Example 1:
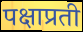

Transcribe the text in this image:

पक्षाप्रती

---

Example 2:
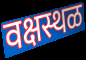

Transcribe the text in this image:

वक्षस्थळ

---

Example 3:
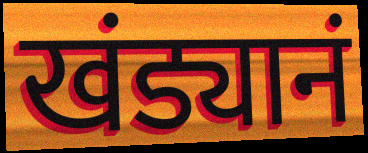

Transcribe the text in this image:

खंड्यानं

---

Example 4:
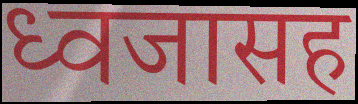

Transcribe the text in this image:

ध्वजासह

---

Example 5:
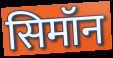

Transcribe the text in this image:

सिमॉन